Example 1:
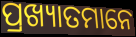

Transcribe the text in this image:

ପ୍ରଖ୍ୟାତମାନେ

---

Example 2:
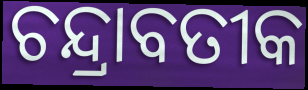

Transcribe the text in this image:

ଚନ୍ଦ୍ରାବତୀକ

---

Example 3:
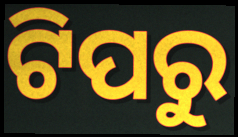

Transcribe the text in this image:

ଟିପରୁ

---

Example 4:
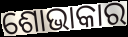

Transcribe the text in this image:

ଶୋଭାକାର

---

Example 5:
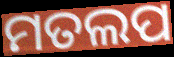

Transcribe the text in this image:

ମତଲପ